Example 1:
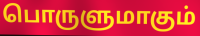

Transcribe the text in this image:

பொருளுமாகும்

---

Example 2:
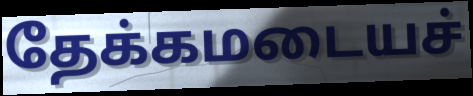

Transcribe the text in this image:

தேக்கமடையச்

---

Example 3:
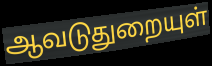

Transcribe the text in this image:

ஆவடுதுறையுள்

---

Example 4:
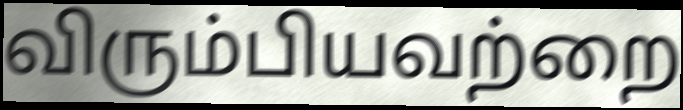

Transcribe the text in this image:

விரும்பியவற்றை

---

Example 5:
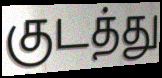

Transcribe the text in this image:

குடத்து